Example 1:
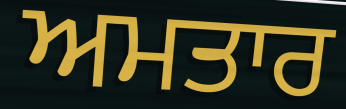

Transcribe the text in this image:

ਅਮਤਾਰ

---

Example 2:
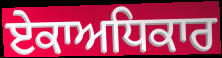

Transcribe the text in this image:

ਏਕਾਅਧਿਕਾਰ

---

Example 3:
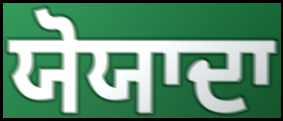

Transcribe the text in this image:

ਯੋਯਾਦਾ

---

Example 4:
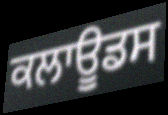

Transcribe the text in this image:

ਕਲਾਊਡਸ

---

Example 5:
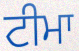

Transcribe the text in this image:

ਟੀਮਾ